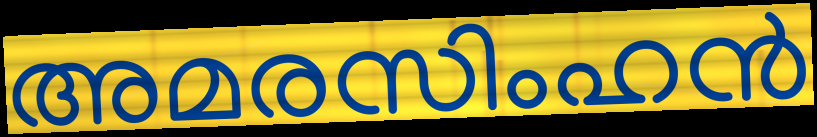
അമരസിംഹൻ